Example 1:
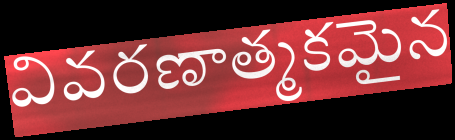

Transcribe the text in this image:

వివరణాత్మకమైన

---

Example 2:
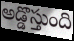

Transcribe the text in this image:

అడ్డొస్తుంది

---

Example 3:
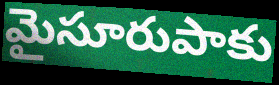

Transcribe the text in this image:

మైసూరుపాకు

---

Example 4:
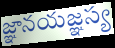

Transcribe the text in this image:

జ్ఞానయజ్ఞస్య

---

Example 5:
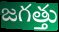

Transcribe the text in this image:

జగత్తు